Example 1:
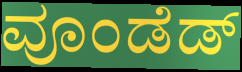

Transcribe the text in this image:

ವೂಂಡೆಡ್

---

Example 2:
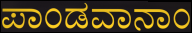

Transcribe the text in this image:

ಪಾಂಡವಾನಾಂ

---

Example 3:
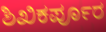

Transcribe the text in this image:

ಶಿಖಿಕರ್ಪೂರ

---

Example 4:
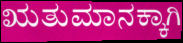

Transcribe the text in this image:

ಋತುಮಾನಕ್ಕಾಗಿ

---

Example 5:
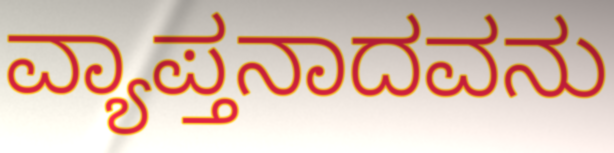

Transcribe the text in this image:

ವ್ಯಾಪ್ತನಾದವನು